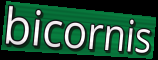
bicornis